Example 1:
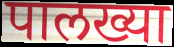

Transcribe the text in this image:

पालख्या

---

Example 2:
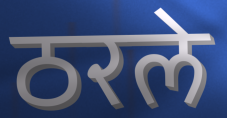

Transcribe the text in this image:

ठरले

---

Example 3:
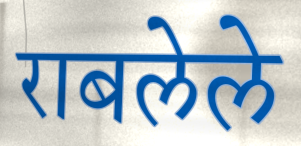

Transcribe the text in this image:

राबलेले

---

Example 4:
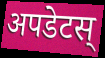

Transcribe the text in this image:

अपडेटस्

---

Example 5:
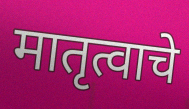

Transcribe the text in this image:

मातृत्वाचे